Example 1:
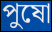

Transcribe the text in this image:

পুষো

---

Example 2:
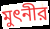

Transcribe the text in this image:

মুৎনীর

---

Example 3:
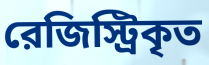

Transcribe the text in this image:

রেজিস্ট্রিকৃত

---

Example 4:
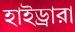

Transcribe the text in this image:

হাইড্রারা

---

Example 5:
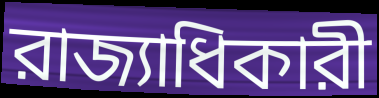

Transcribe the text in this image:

রাজ্যাধিকারী